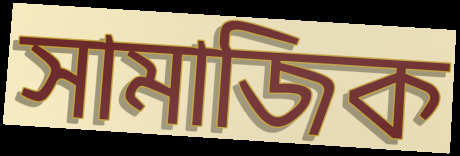
সামাজিক